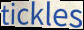
tickles